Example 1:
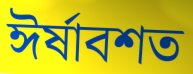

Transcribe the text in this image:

ঈর্ষাবশত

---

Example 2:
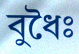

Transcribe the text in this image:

বুধৈঃ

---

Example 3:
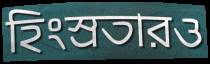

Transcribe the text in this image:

হিংস্রতারও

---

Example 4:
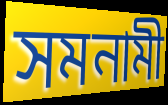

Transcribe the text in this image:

সমনামী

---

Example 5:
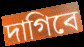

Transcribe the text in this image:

দাগিবে